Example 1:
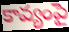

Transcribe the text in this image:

కావ్యంపై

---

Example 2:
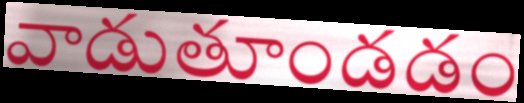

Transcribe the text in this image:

వాడుతూండడం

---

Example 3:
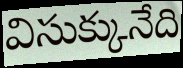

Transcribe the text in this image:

విసుక్కునేది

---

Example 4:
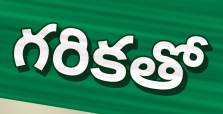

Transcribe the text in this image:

గరికతో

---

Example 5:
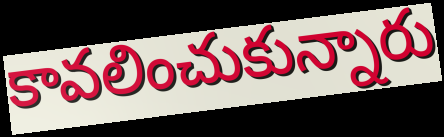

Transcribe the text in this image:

కావలించుకున్నారు